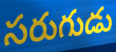
సరుగుడు